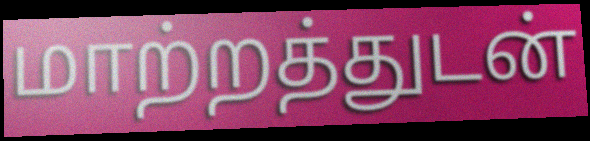
மாற்றத்துடன்